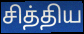
சித்திய